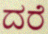
ದರೆ